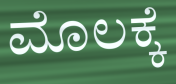
ಮೊಲಕ್ಕೆ